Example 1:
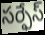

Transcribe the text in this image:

సర్ఫేస్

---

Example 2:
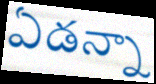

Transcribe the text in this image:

ఏడన్నా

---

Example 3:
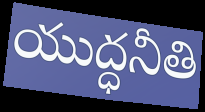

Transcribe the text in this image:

యుద్ధనీతి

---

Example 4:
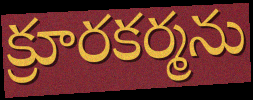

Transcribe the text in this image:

క్రూరకర్మను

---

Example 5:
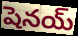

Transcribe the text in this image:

షెనయ్